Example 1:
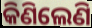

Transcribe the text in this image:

କିଣିଲେଣି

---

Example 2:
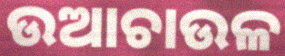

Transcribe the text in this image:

ଉଆଚାଉଳ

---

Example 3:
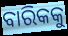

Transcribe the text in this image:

ବାରିକକୁ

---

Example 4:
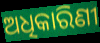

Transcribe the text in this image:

ଅଧିକାରିଣୀ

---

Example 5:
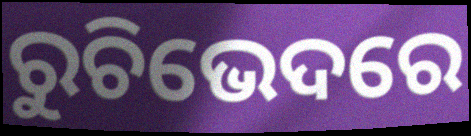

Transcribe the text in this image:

ରୁଚିଭେଦରେ